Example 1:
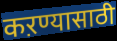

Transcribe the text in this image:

कऱण्यासाठी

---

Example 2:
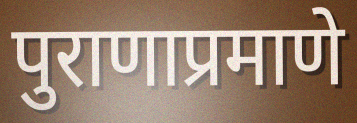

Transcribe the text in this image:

पुराणाप्रमाणे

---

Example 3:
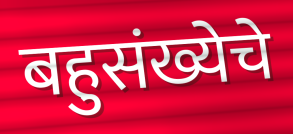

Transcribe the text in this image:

बहुसंख्येचे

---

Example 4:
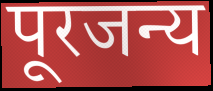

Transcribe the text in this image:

पूरजन्य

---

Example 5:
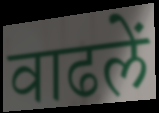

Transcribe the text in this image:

वाढलें